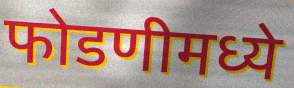
फोडणीमध्ये